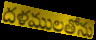
దళములతోను